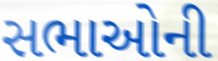
સભાઓની